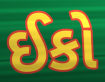
ઈકો